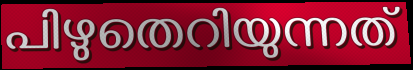
പിഴുതെറിയുന്നത്